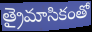
త్రైమాసికంతో